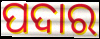
ପଦାର